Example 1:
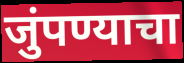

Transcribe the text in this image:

जुंपण्याचा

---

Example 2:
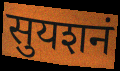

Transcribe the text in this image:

सुयशनं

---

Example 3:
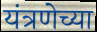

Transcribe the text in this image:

यंत्रणेच्या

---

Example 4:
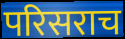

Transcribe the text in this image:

परिसराच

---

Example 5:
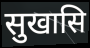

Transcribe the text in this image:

सुखासि